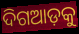
ଦିଗଆଡ଼କୁ